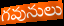
గవునులు